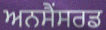
ਅਨਸੈਂਸਰਡ